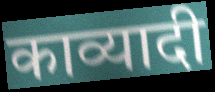
काव्यादी